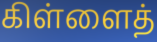
கிள்ளைத்